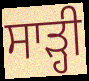
ਸਾੜ੍ਹੀ